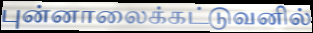
புன்னாலைக்கட்டுவனில்